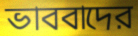
ভাববাদের